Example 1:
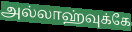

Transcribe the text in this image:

அல்லாஹ்வுக்கே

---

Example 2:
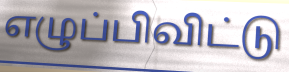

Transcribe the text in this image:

எழுப்பிவிட்டு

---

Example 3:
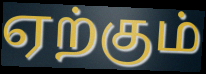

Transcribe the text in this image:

ஏற்கும்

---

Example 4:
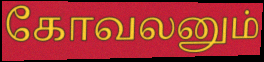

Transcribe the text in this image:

கோவலனும்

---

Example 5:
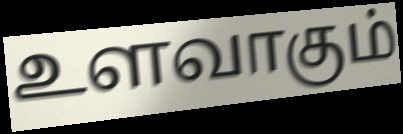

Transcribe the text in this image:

உளவாகும்